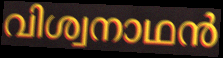
വിശ്വനാഥൻ